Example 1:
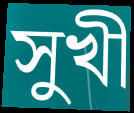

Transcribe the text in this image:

সুখী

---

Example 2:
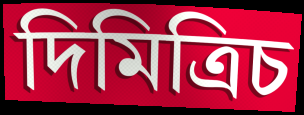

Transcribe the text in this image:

দিমিত্রিচ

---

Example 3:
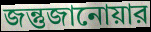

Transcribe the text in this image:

জন্তুজানোয়ার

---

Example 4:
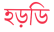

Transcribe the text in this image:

হড়ডি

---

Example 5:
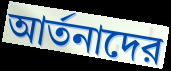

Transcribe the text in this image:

আর্তনাদের